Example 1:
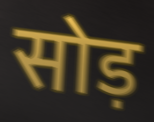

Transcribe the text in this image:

सोड़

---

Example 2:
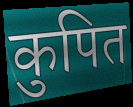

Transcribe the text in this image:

कुपित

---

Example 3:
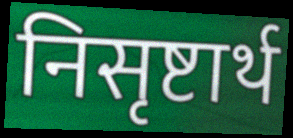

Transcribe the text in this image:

निसृष्टार्थ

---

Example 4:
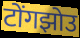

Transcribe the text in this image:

टोंगझोउ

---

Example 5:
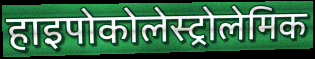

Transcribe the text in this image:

हाइपोकोलेस्ट्रोलेमिक